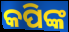
କପିଙ୍କ